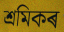
শ্ৰমিকৰ